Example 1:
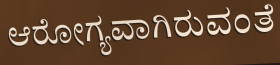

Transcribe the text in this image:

ಆರೋಗ್ಯವಾಗಿರುವಂತೆ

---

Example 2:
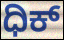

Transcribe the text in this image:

ಧಿಕ್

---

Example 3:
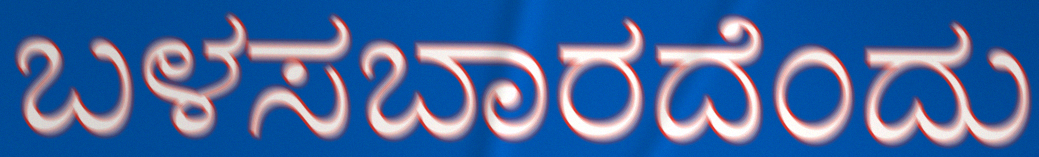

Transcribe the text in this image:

ಬಳಸಬಾರದೆಂದು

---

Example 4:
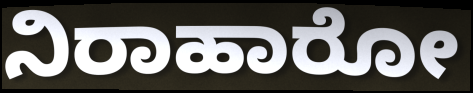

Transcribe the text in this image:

ನಿರಾಹಾರೋ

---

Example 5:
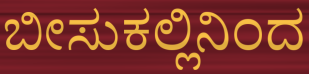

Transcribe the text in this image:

ಬೀಸುಕಲ್ಲಿನಿಂದ